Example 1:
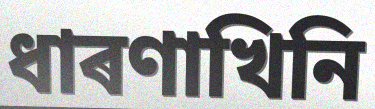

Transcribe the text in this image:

ধাৰণাখিনি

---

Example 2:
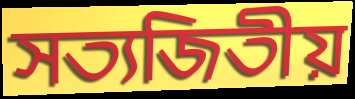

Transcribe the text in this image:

সত্যজিতীয়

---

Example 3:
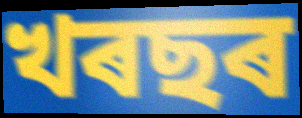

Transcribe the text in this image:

খৰছৰ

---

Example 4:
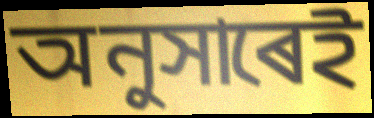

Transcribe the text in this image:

অনুসাৰেই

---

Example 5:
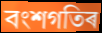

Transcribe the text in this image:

বংশগতিৰ